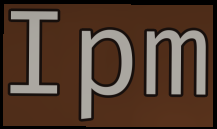
Ipm